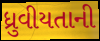
ધ્રુવીયતાની